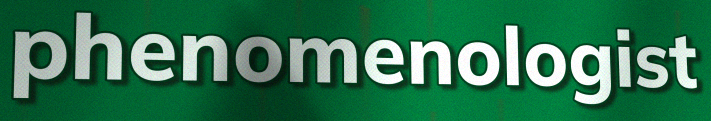
phenomenologist